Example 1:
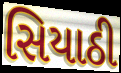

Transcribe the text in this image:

સિયાઠી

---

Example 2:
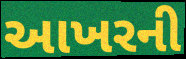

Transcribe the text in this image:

આખરની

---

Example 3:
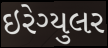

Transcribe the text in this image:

ઇરેગ્યુલર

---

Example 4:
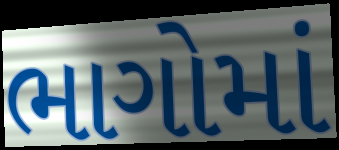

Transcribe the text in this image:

ભાગોમાં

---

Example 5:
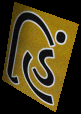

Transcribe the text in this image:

હિં